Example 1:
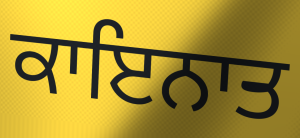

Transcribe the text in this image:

ਕਾਇਨਾਤ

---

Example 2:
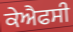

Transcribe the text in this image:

ਕੇਐਫਸੀ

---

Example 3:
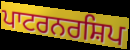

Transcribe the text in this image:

ਪਾਟਰਨਰਸ਼ਿਪ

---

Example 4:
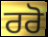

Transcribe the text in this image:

ਰਰੋ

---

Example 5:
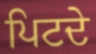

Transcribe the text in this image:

ਪਿਟਦੇ